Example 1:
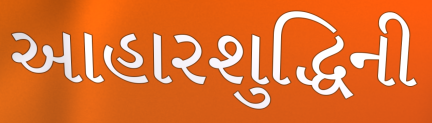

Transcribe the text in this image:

આહારશુદ્ધિની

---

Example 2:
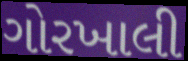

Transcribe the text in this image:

ગોરખાલી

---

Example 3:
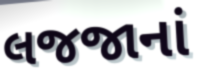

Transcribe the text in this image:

લજજાનાં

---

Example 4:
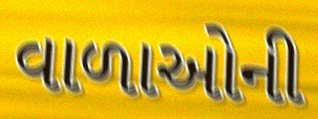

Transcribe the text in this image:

વાળાઓની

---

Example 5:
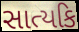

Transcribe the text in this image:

સાત્યકિ